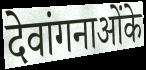
देवांगनाओंके